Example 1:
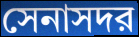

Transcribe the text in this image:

সেনাসদর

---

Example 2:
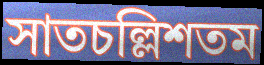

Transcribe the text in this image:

সাতচল্লিশতম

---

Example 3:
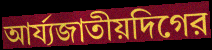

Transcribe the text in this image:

আর্য্যজাতীয়দিগের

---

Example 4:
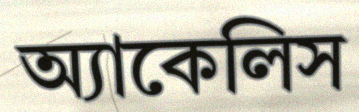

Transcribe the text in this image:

অ্যাকেলিস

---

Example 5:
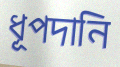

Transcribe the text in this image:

ধূপদানি